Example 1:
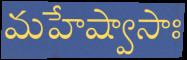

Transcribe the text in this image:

మహేష్వాసాః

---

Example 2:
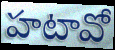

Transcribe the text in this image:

హటావో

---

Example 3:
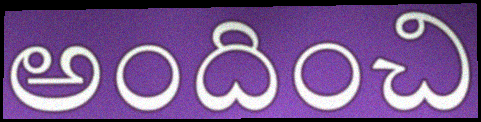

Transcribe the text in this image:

అందించి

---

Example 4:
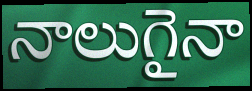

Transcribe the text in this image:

నాలుగైనా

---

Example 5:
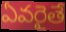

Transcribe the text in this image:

ఏవరైతే